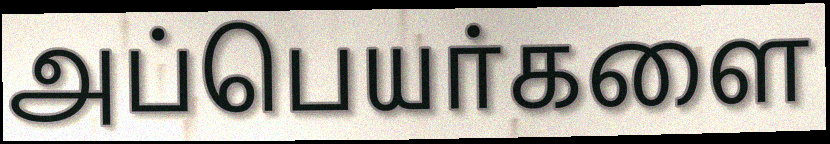
அப்பெயர்களை